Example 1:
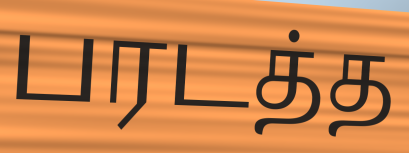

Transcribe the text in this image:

பரடத்த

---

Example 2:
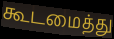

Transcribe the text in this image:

கூடமைத்து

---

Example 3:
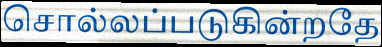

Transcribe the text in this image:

சொல்லப்படுகின்றதே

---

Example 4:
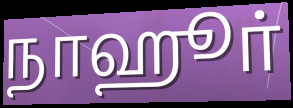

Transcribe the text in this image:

நாஹூர்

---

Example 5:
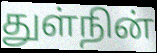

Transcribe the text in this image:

துள்நின்